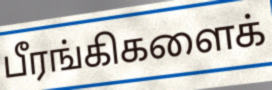
பீரங்கிகளைக்